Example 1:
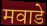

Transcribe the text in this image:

मवाडे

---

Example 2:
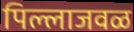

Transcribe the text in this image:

पिल्लाजवळ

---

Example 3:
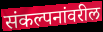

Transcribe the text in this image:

संकल्पनांवरील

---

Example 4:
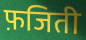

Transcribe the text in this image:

फ़जिती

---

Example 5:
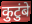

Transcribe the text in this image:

कुटुंबे